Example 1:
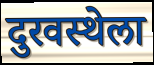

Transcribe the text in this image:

दुरवस्थेला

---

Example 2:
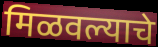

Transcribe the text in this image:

मिळवल्याचे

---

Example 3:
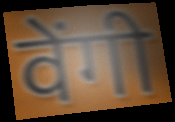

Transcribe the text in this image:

वेंगी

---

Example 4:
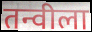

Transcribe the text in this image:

तन्वीला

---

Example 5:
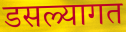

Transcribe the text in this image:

डसल्यागत